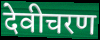
देवीचरण